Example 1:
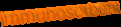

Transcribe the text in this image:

immunosorbent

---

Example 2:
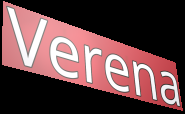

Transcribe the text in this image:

Verena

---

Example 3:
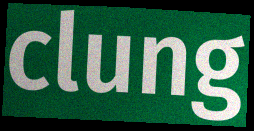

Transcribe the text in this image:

clung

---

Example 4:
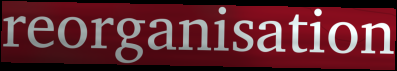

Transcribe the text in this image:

reorganisation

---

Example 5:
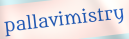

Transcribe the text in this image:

pallavimistry